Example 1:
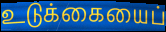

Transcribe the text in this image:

உடுக்கையைப்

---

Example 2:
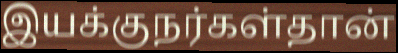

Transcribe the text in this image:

இயக்குநர்கள்தான்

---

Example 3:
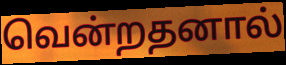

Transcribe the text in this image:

வென்றதனால்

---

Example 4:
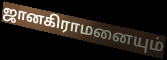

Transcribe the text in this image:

ஜானகிராமனையும்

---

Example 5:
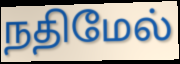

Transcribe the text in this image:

நதிமேல்